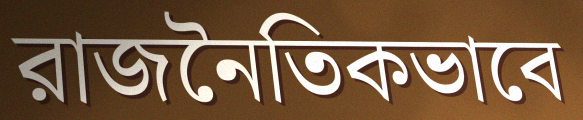
রাজনৈতিকভাবে